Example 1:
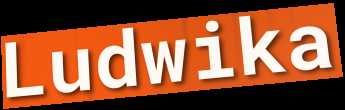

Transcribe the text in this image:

Ludwika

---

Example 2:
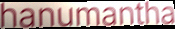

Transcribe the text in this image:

hanumantha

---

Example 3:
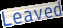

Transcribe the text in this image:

Leaved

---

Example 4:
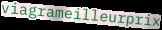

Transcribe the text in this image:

viagrameilleurprix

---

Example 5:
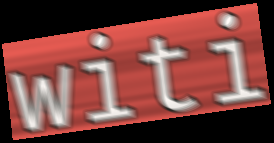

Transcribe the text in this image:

witi